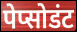
पेप्सोडंट